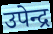
उपेन्द्र